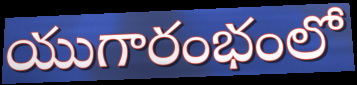
యుగారంభంలో